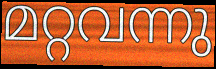
മറ്റവന്നു